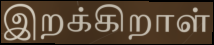
இறக்கிறாள்